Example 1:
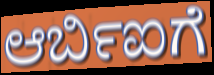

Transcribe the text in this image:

ಆರ್ಬಿಐಗೆ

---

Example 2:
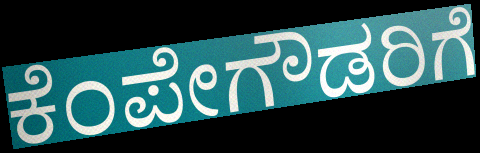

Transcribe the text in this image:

ಕೆಂಪೇಗೌಡರಿಗೆ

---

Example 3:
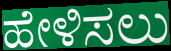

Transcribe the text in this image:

ಹೇಳಿಸಲು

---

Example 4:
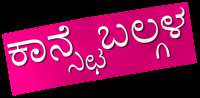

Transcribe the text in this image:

ಕಾನ್ಸ್ಟೆಬಲ್ಗಳ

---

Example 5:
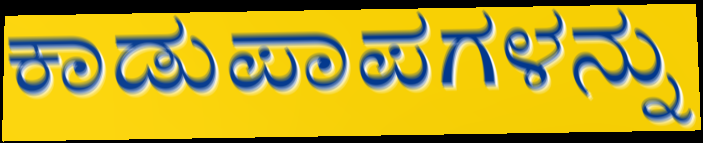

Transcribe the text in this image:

ಕಾಡುಪಾಪಗಳನ್ನು